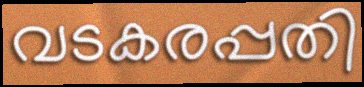
വടകരപ്പതി